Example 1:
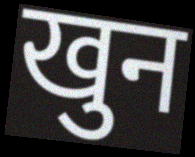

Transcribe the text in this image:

खुन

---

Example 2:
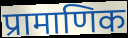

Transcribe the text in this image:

प्रामाणिक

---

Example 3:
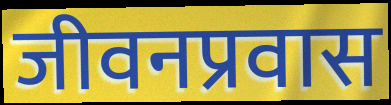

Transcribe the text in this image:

जीवनप्रवास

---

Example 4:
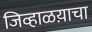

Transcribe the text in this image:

जिव्हाळय़ाचा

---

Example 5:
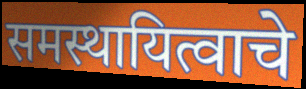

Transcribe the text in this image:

समस्थायित्वाचे